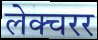
लेक्‍चरर